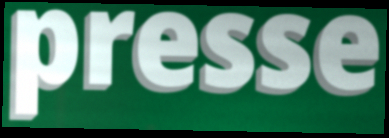
presse